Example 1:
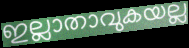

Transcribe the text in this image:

ഇല്ലാതാവുകയല്ല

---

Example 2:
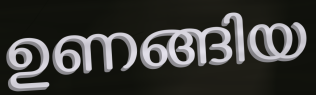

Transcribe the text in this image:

ഉണങ്ങിയ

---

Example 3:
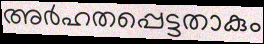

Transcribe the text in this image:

അർഹതപ്പെട്ടതാകും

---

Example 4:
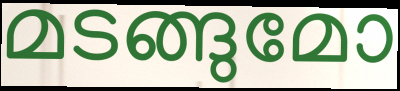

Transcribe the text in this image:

മടങ്ങുമോ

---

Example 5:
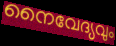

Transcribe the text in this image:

നൈവേദ്യവും